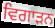
ਵਿਗਾੜਨ